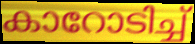
കാറോടിച്ച്